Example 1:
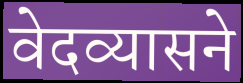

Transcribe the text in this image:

वेदव्यासने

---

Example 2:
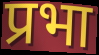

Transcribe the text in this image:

प्रभा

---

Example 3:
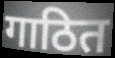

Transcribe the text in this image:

गाठित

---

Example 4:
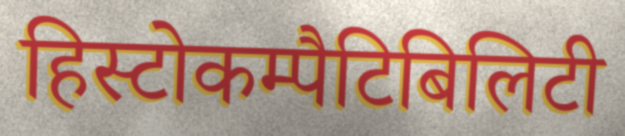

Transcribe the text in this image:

हिस्टोकम्पैटिबिलिटी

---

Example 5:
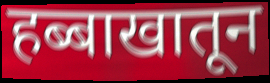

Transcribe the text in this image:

हब्बाखातून